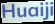
Huaiji